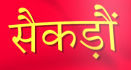
सैकड़ौं